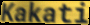
Kakati